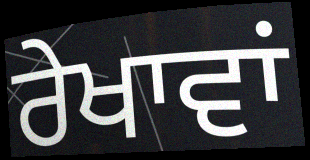
ਰੇਖਾਵਾਂ